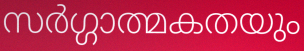
സർഗ്ഗാത്മകതയും